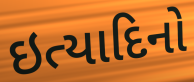
ઇત્યાદિનો